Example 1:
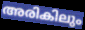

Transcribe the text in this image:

അരികിലും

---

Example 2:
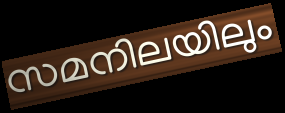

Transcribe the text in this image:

സമനിലയിലും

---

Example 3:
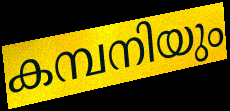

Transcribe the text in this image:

കമ്പനിയും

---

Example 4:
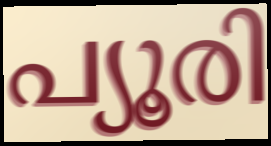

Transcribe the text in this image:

പ്യൂരി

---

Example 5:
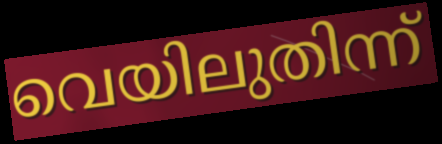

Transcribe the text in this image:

വെയിലുതിന്ന്